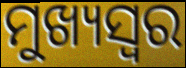
ମୁଖ୍ୟସ୍ୱର